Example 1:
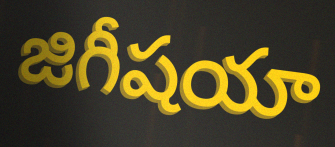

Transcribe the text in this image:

జిగీషయా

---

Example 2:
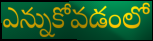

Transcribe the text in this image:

ఎన్నుకోవడంలో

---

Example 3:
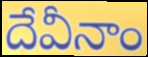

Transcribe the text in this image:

దేవీనాం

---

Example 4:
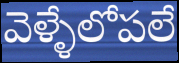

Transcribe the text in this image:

వెళ్ళేలోపలే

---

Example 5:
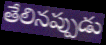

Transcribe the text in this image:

తేలినప్పుడు